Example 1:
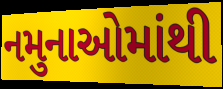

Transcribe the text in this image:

નમુનાઓમાંથી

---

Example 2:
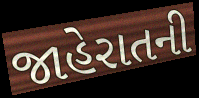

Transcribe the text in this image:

જાહેરાતની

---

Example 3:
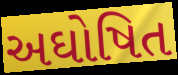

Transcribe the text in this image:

અઘોષિત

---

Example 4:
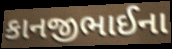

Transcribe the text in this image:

કાનજીભાઈના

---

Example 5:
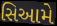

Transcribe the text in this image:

સિઆમે